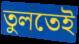
তুলতেই